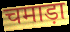
चमाड़ा